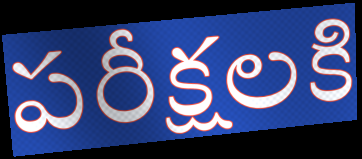
పరీక్షలకి